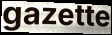
gazette